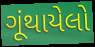
ગૂંથાયેલો